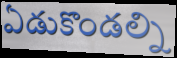
ఏడుకొండల్ని